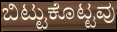
ಬಿಟ್ಟುಕೊಟ್ಟವು